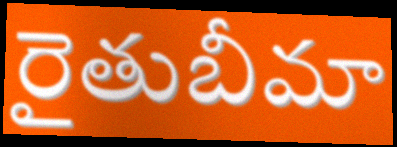
రైతుబీమా